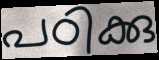
പഠിക്കു